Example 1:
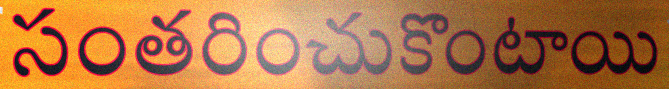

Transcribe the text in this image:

సంతరించుకొంటాయి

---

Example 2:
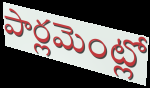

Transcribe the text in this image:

పార్లమెంట్లో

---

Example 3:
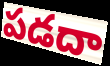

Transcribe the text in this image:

పడదా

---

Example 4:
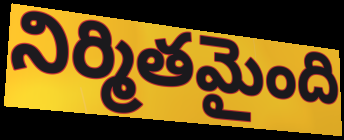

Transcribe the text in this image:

నిర్మితమైంది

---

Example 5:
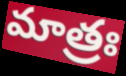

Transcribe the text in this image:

మాత్రః